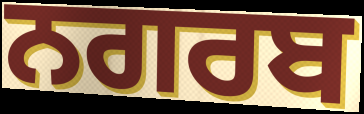
ਨਗਰਬ